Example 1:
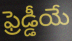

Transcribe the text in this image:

ఫ్రెడ్డీయే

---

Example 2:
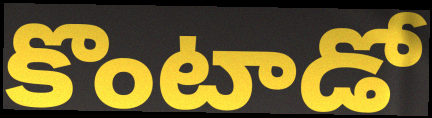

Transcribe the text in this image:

కొంటాడో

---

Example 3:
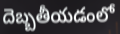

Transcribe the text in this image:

దెబ్బతీయడంలో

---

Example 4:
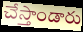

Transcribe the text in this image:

చేస్తాండారు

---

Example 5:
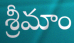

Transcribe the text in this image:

శ్రీమాం